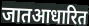
जातआधारित